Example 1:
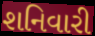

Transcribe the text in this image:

શનિવારી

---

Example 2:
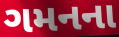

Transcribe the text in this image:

ગમનના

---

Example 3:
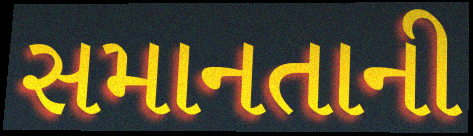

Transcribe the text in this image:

સમાનતાની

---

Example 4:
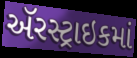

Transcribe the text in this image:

ઍરસ્ટ્રાઇકમાં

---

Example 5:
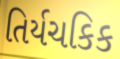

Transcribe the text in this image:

તિર્યચકિક